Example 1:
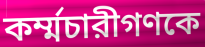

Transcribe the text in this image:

কর্ম্মচারীগণকে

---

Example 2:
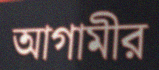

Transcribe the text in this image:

আগামীর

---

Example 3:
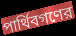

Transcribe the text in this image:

পার্থিবগণের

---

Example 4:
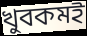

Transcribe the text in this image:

খুবকমই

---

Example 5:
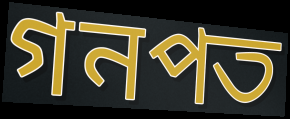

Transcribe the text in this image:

গনপত